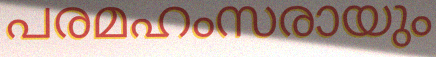
പരമഹംസരായും